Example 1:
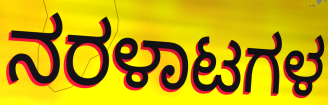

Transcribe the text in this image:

ನರಳಾಟಗಳ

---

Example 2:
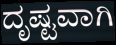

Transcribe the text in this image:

ದೃಷ್ಟವಾಗಿ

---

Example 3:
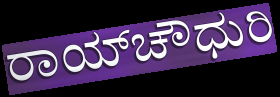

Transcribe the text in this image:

ರಾಯ್‌ಚೌಧುರಿ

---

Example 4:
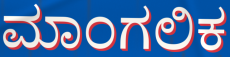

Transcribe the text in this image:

ಮಾಂಗಲಿಕ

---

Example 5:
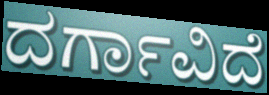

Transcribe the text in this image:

ದರ್ಗಾವಿದೆ